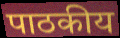
पाठकीय